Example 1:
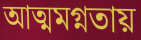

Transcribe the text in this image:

আত্মমগ্নতায়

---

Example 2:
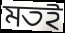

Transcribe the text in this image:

মতই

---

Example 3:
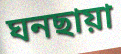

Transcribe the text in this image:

ঘনছায়া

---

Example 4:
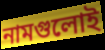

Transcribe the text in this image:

নামগুলোই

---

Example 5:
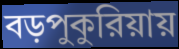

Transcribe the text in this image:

বড়পুকুরিয়ায়